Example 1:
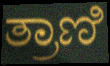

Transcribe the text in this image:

ತ್ರಾಣಿ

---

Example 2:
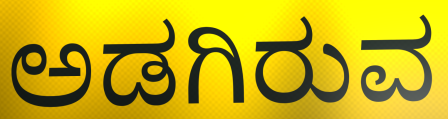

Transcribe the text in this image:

ಅಡಗಿರುವ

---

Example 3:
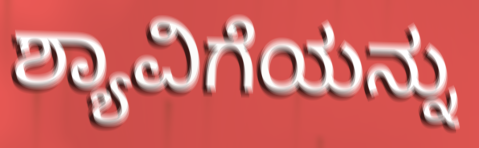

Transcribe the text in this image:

ಶ್ಯಾವಿಗೆಯನ್ನು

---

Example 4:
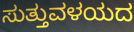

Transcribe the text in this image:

ಸುತ್ತುವಳಯದ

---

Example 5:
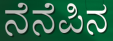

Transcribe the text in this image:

ನೆನೆಪಿನ